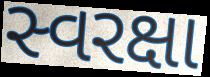
સ્વરક્ષા